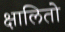
क्षालितो